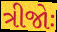
ત્રીજોઃ